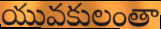
యువకులంతా